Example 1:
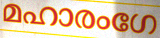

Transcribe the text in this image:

മഹാരംഗേ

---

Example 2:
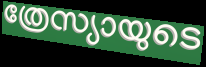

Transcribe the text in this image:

ത്രേസ്യായുടെ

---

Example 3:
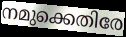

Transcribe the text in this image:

നമുക്കെതിരേ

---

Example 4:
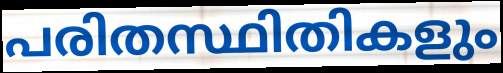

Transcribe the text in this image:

പരിതസ്ഥിതികളും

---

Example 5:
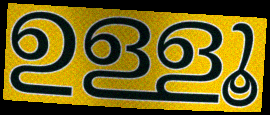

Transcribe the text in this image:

ഉള്ളൂ